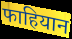
फाहियान